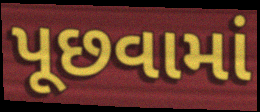
પૂછવામાં